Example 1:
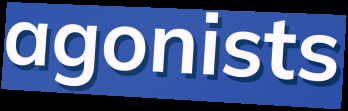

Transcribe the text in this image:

agonists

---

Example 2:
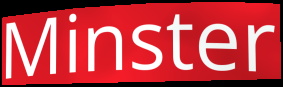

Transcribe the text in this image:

Minster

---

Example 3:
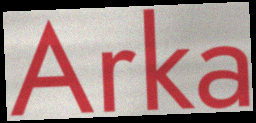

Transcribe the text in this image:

Arka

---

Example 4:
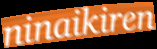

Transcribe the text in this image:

ninaikiren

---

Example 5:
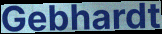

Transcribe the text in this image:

Gebhardt